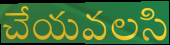
చేయవలసి